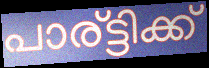
പാര്ട്ടിക്ക്